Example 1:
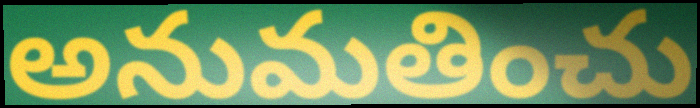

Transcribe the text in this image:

అనుమతించు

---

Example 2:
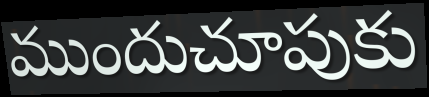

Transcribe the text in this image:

ముందుచూపుకు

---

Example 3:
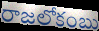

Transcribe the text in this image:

రాజలోకంబు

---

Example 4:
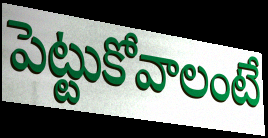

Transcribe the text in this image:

పెట్టుకోవాలంటే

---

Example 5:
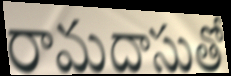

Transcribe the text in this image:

రామదాసుతో